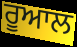
ਰੂਆਲ